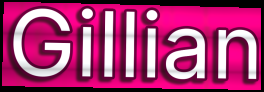
Gillian